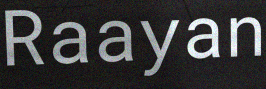
Raayan